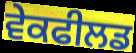
ਵੇਕਫੀਲਡ